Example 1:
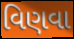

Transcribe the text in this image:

વિણવા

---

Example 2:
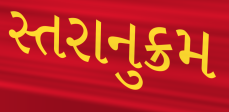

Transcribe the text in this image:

સ્તરાનુક્રમ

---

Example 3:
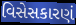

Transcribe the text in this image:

વિસેસકારણં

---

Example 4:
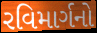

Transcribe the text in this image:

રવિમાર્ગનો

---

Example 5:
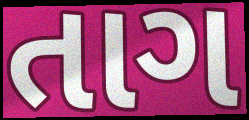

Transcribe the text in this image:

તાગ